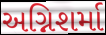
અગ્નિશર્મા